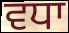
ਵਧਾ